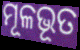
ମୂଳଭୂତ